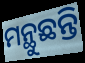
ମନ୍ଥୁଛନ୍ତି